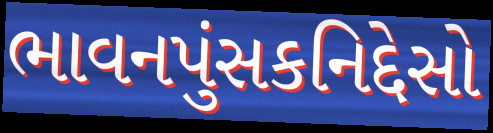
ભાવનપુંસકનિદ્દેસો